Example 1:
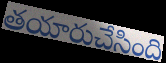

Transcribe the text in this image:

తయారుచేసింది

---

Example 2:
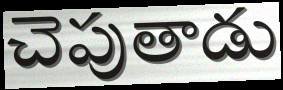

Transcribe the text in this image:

చెపుతాడు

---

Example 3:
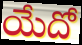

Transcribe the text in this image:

యేదో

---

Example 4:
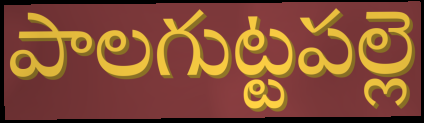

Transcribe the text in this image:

పాలగుట్టపల్లె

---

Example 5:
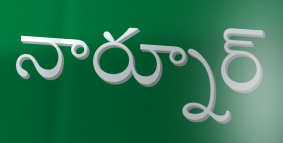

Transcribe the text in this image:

నార్నూర్